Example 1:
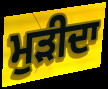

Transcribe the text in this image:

ਮੁੜੀਦਾ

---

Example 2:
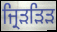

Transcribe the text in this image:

ਜ੍ਰਿੜੜਿੜ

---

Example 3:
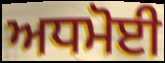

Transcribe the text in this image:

ਅਧਮੋਈ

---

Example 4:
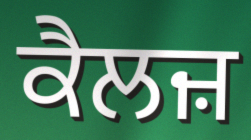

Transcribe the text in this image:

ਕੈਲਜ਼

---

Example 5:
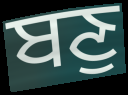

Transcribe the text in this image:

ਬਣੁ